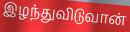
இழந்துவிடுவான்